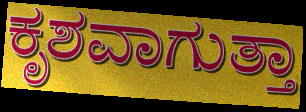
ಕೃಶವಾಗುತ್ತಾ